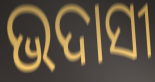
ଭଦାସୀ